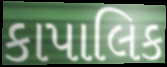
કાપાલિક